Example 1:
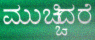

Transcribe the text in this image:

ಮುಚ್ಚಿದರೆ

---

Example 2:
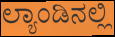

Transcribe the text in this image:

ಲ್ಯಾಂಡಿನಲ್ಲಿ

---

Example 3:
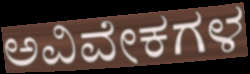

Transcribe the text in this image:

ಅವಿವೇಕಗಳ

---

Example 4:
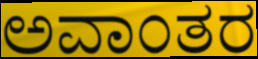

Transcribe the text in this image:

ಅವಾಂತರ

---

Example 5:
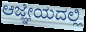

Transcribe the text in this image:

ಆಜ್ಞೇಯದಲ್ಲಿ